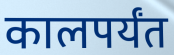
कालपर्यंत